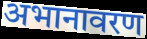
अभानावरण